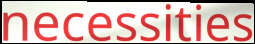
necessities